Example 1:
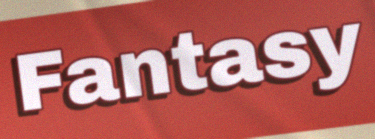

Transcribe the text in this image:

Fantasy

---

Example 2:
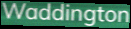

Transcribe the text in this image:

Waddington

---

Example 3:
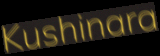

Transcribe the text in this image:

Kushinara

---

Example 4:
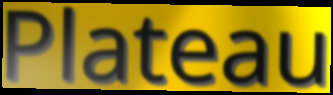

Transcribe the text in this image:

Plateau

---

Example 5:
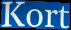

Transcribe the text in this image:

Kort